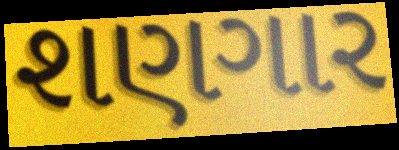
શણગાર